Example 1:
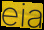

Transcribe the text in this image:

eia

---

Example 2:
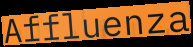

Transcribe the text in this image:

Affluenza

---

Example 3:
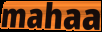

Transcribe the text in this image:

mahaa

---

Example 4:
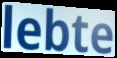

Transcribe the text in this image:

lebte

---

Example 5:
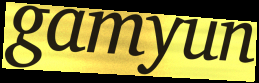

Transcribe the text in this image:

gamyun